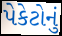
પેકેટોનું